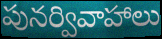
పునర్వివాహాలు